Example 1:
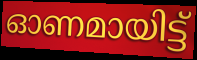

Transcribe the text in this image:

ഓണമായിട്ട്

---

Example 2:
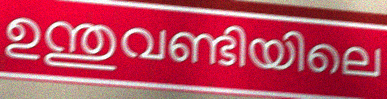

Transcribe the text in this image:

ഉന്തുവണ്ടിയിലെ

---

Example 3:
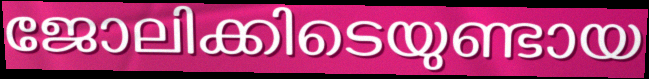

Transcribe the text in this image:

ജോലിക്കിടെയുണ്ടായ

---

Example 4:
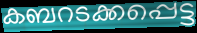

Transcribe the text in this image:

കബറടക്കപ്പെട്ട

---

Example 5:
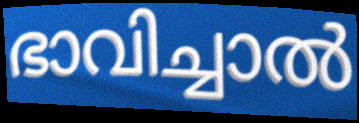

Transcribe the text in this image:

ഭാവിച്ചാൽ